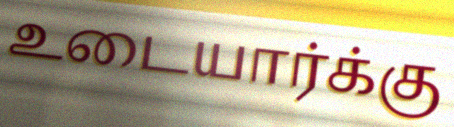
உடையார்க்கு